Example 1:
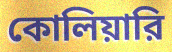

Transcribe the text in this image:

কোলিয়ারি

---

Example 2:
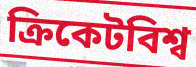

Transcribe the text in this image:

ক্রিকেটবিশ্ব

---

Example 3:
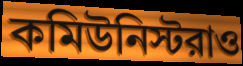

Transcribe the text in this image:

কমিউনিস্টরাও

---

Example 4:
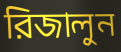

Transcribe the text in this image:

রিজালুন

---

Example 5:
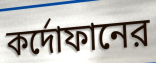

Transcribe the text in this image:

কর্দোফানের